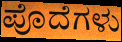
ಪೊದೆಗಳು